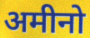
अमीनो